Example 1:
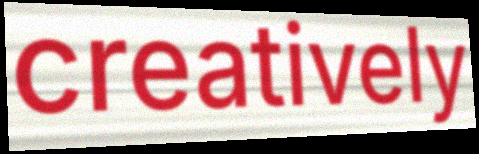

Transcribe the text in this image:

creatively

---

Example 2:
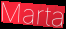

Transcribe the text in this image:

Marta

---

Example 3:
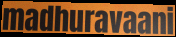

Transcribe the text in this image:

madhuravaani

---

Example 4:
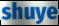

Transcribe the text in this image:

shuye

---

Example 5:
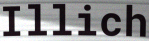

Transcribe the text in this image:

Illich